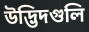
উদ্ভিদগুলি